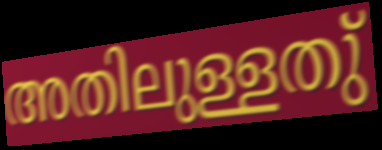
അതിലുള്ളതു്